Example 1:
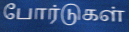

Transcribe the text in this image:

போர்டுகள்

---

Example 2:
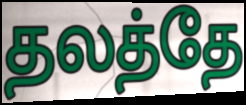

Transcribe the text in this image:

தலத்தே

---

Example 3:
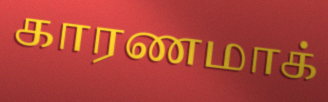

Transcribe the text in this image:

காரணமாக்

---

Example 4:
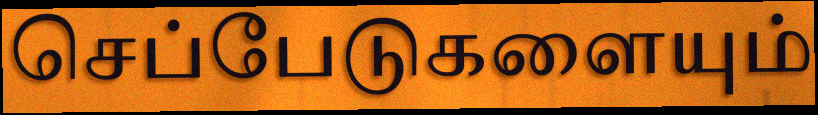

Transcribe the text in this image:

செப்பேடுகளையும்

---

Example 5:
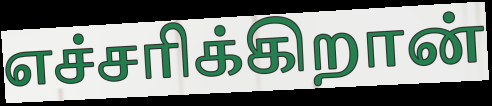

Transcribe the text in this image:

எச்சரிக்கிறான்